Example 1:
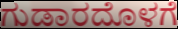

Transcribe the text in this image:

ಗುಡಾರದೊಳಗೆ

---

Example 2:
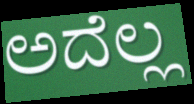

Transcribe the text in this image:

ಅದೆಲ್ಲ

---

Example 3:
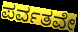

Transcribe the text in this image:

ಪರ್ವತವೇ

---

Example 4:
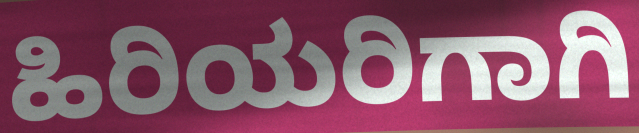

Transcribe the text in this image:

ಹಿರಿಯರಿಗಾಗಿ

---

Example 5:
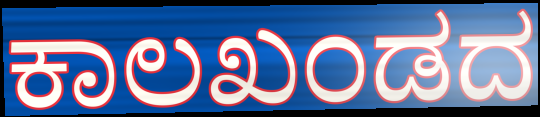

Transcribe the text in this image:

ಕಾಲಖಂಡದ